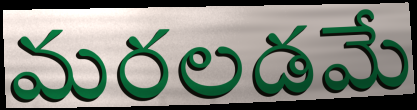
మరలడమే